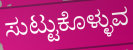
ಸುಟ್ಟುಕೊಳ್ಳುವ